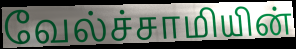
வேல்ச்சாமியின்